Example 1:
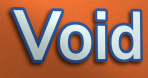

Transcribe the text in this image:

Void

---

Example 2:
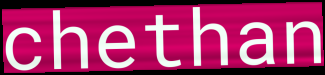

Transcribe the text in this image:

chethan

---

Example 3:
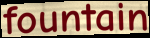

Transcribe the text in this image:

fountain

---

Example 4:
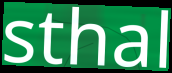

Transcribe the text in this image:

sthal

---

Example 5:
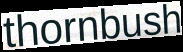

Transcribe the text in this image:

thornbush